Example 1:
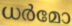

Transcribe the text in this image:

ധർമോ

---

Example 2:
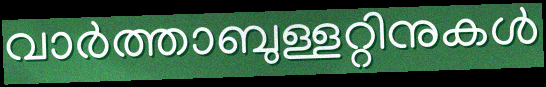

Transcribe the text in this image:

വാർത്താബുള്ളറ്റിനുകൾ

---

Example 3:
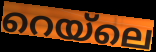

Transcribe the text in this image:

റെയ്ലെ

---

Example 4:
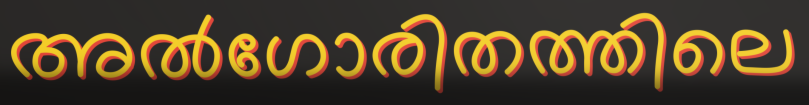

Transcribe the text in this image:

അൽഗോരിതത്തിലെ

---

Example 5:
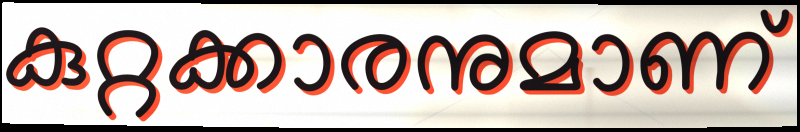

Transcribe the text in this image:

കുറ്റക്കാരനുമാണ്